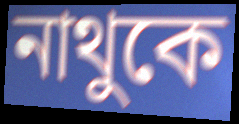
নাথুকে